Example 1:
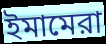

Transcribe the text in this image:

ইমামেরা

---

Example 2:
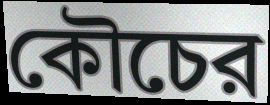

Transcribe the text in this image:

কৌচের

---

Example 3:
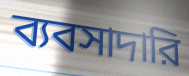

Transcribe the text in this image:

ব্যবসাদারি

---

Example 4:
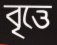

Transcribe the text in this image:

বৃত্তে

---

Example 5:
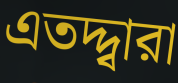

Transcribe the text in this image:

এতদ্দ্বারা